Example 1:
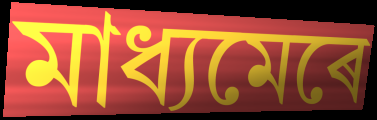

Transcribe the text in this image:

মাধ্যমেৰে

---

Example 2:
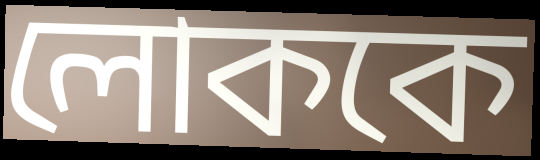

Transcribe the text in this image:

লোককে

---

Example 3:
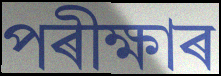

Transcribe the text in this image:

পৰীক্ষাৰ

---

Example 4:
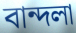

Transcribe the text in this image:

বান্দলা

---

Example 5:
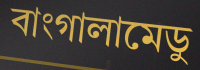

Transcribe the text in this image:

বাংগালামেডু